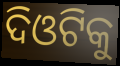
ଦିଓଟିକୁ